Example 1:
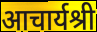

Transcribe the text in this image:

आचार्यश्री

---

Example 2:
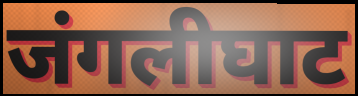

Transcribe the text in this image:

जंगलीघाट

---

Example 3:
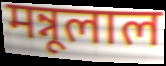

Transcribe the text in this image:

मन्नूलाल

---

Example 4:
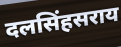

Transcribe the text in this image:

दलसिंहसराय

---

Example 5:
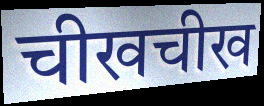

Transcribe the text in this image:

चीखचीख